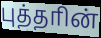
புத்தரின்